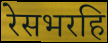
रेसभरहि